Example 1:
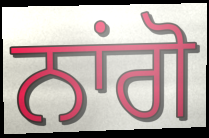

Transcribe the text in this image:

ਨਾਂਗੋ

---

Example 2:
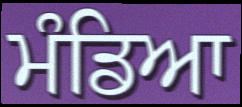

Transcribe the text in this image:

ਮੰਡਿਆ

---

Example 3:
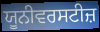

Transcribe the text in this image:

ਯੂਨੀਵਰਸਟੀਜ਼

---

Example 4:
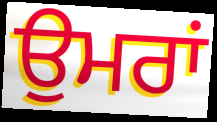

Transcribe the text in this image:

ਉੁਮਰਾਂ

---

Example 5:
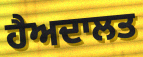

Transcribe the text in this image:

ਹੈਅਦਾਲਤ